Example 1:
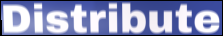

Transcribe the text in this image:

Distribute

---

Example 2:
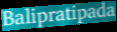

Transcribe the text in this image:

Balipratipada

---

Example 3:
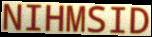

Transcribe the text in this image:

NIHMSID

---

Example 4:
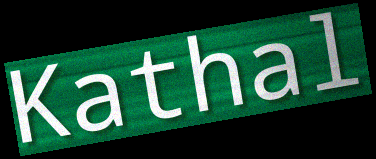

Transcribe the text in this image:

Kathal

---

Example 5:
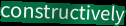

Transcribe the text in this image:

constructively